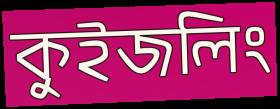
কুইজলিং